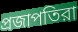
প্রজাপতিরা